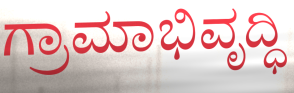
ಗ್ರಾಮಾಭಿವೃದ್ಧಿ